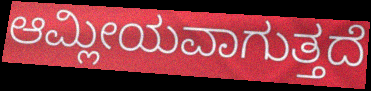
ಆಮ್ಲೀಯವಾಗುತ್ತದೆ